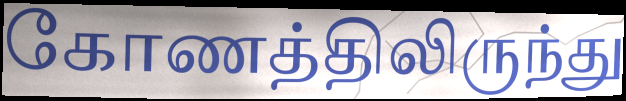
கோணத்திலிருந்து